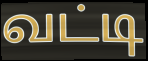
வட்டி